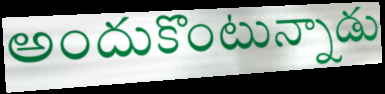
అందుకొంటున్నాడు